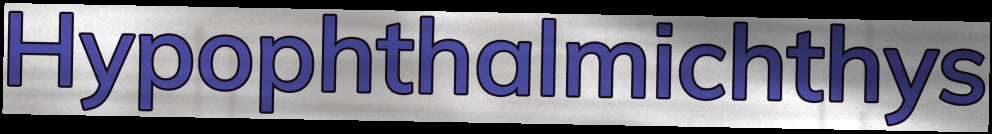
Hypophthalmichthys